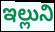
ఇల్లుని